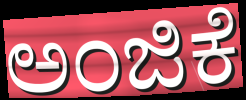
ಅಂಜಿಕೆ